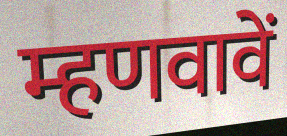
म्हणवावें